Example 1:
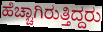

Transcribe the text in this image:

ಹೆಚ್ಚಾಗಿರುತ್ತಿದ್ದರು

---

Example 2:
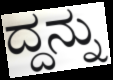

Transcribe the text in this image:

ದ್ದನ್ನು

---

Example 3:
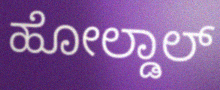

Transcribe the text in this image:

ಹೋಲ್ಡಾಲ್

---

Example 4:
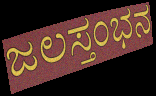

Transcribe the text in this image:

ಜಲಸ್ತಂಭನ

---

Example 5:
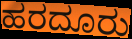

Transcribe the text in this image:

ಹರದೂರು